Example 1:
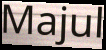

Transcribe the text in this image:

Majul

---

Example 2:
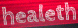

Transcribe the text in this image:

healeth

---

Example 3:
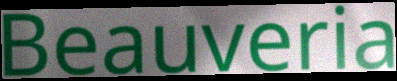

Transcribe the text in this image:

Beauveria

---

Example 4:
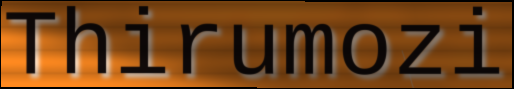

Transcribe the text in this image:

Thirumozi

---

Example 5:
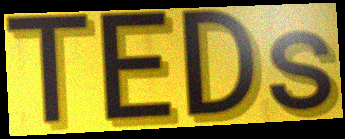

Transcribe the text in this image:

TEDs